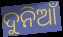
ଦୁନିଆଁ